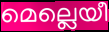
മെല്ലെയീ